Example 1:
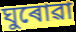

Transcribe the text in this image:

ঘুৰোৱা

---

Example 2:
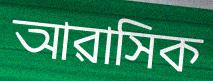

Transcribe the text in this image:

আৱাসিক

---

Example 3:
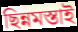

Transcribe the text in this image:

ছিন্নমস্তাই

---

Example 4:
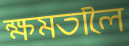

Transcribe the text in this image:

ক্ষমতালৈ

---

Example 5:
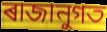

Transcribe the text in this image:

ৰাজানুগত